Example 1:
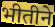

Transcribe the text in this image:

भीतीने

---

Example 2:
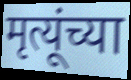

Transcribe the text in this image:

मृत्यूंच्या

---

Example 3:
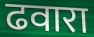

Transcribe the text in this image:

ढवारा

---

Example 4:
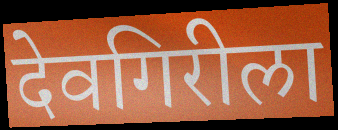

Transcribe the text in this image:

देवगिरीला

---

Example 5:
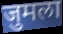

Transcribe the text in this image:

जुमला